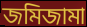
জমিজামা